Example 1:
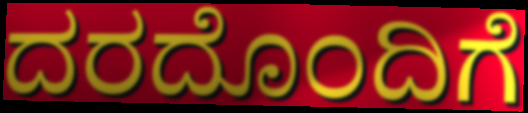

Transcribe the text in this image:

ದರದೊಂದಿಗೆ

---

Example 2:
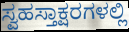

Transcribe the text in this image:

ಸ್ವಹಸ್ತಾಕ್ಷರಗಳಲ್ಲಿ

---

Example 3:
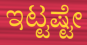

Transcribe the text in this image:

ಇಟ್ಟಷ್ಟೇ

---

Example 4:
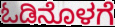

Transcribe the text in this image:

ಓಡಿನೊಳಗೆ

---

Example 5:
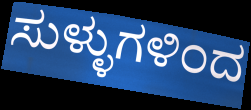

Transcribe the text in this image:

ಸುಳ್ಳುಗಳಿಂದ